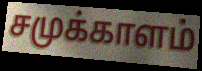
சமுக்காளம்